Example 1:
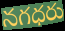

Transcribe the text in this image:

నగధరు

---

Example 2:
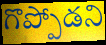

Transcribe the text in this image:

గొప్పోడని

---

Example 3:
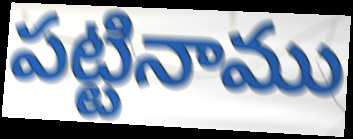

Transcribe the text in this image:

పట్టినాము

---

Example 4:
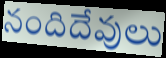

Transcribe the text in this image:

నందిదేవులు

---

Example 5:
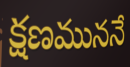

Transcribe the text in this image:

క్షణముననే